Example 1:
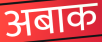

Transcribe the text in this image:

अबाक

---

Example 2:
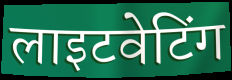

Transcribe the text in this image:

लाइटवेटिंग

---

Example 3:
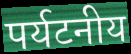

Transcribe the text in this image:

पर्यटनीय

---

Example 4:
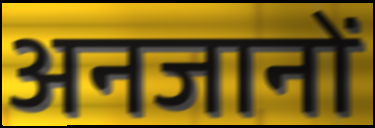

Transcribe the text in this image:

अनजानों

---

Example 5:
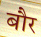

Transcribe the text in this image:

बौर